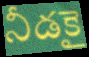
నీడకై